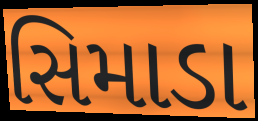
સિમાડા